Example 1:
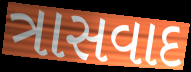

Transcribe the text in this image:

ત્રાસવાદ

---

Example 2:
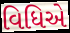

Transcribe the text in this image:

વિધિએ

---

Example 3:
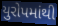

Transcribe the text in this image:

યુરોપમાંથી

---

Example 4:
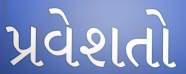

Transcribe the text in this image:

પ્રવેશતો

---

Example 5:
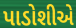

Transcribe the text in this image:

પાડોશીએ